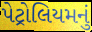
પેટ્રોલિયમનું